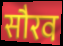
सौरव